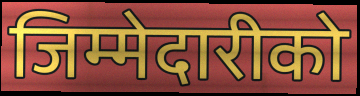
जिम्मेदारीको